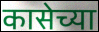
कासेच्या